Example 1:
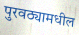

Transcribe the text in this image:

पुरवठ्यामधील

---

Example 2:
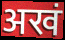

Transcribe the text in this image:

अखं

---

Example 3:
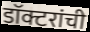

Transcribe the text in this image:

डॉक्टरांची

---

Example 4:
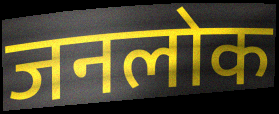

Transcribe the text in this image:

जनलोक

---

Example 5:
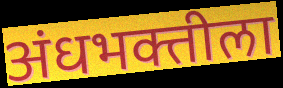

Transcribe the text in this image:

अंधभक्तीला